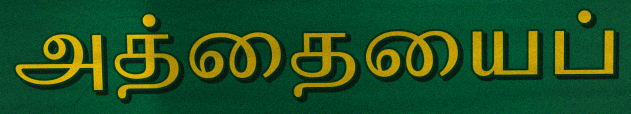
அத்தையைப்